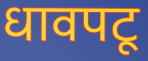
धावपटू